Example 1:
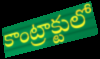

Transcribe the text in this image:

కాంట్రాక్టులో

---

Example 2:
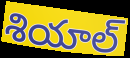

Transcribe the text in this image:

శియాల్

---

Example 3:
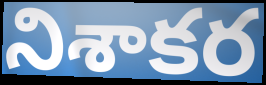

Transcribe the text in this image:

నిశాకర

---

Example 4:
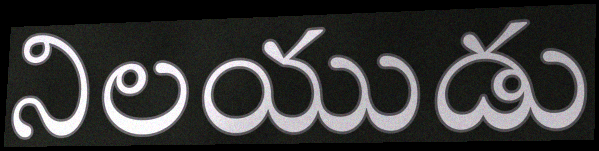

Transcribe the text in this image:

నిలయుడు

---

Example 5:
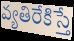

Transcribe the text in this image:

వ్యతిరేకిస్తే